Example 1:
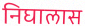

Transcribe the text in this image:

निघालास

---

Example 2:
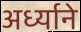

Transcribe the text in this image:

अर्ध्याने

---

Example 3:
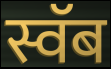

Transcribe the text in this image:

स्वॅब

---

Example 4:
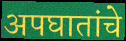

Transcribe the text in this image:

अपघातांचे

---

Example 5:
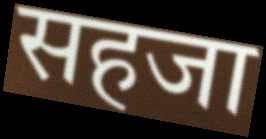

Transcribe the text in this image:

सहजा